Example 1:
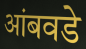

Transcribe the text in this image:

आंबवडे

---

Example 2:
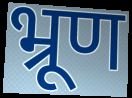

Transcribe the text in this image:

भ्रूण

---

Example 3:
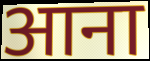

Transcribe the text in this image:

आना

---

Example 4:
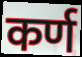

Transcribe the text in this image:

कर्ण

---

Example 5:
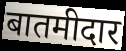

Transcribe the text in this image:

बातमीदार